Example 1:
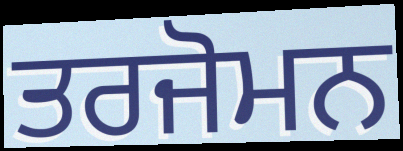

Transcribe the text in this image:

ਤਰਜੋਮਨ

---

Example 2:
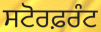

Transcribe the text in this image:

ਸਟੋਰਫ਼ਰੰਟ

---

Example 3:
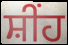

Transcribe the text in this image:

ਸ਼ੀਂਹ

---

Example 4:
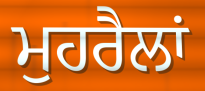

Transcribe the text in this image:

ਮੁਹਰੈਲਾਂ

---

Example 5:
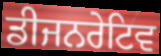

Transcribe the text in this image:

ਡੀਜਨਰੇਟਿਵ